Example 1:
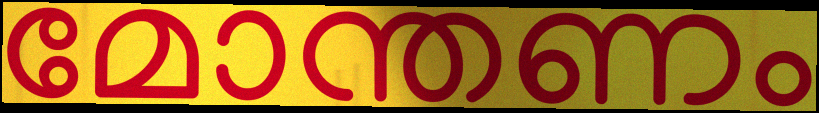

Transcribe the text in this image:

മോന്തണം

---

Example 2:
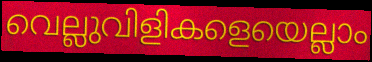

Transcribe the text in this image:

വെല്ലുവിളികളെയെല്ലാം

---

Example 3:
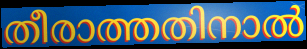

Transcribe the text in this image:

തീരാത്തതിനാൽ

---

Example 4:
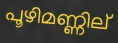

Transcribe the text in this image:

പൂഴിമണ്ണില്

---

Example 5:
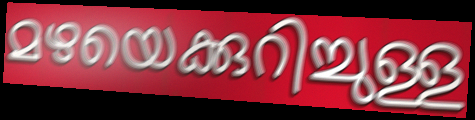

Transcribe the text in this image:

മഴയെക്കുറിച്ചുള്ള